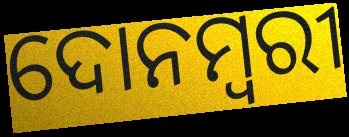
ଦୋନମ୍ବରୀ